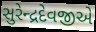
સુરેન્દ્રદેવજીએ